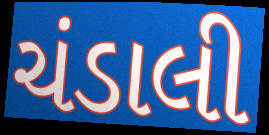
ચંડાલી